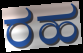
ರಹ